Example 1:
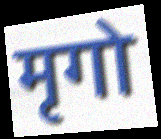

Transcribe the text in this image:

मृगो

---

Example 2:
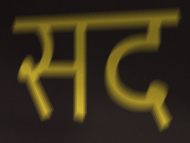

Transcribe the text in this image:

सद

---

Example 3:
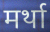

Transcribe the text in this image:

मर्था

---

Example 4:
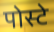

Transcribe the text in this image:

पोस्टे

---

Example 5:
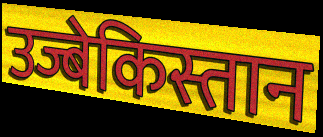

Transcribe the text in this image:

उज्बेकिस्तान